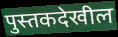
पुस्तकदेखील